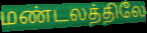
மண்டலத்திலே